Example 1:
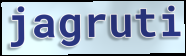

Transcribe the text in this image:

jagruti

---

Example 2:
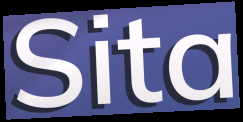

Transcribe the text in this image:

Sita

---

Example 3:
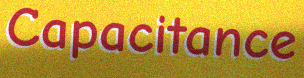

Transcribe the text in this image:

Capacitance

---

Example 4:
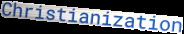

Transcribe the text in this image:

Christianization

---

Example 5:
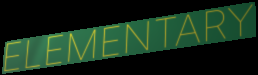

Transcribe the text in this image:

ELEMENTARY